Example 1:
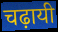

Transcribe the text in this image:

चढ़ायी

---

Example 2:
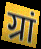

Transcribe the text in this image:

ग्रां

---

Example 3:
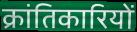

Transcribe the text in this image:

क्रांतिकारियों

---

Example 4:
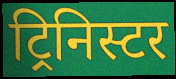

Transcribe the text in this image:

ट्रिनिस्टर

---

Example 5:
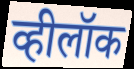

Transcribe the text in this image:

व्हीलॉक